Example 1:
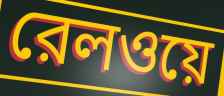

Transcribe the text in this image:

রেলওয়ে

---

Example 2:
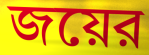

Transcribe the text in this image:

জয়ের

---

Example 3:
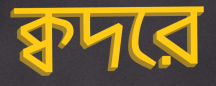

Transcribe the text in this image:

ক্বদরে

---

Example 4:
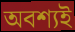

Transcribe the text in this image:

অবশ্যই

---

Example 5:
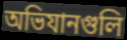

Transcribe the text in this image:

অভিযানগুলি